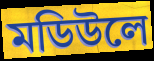
মডিউলে